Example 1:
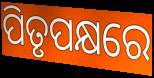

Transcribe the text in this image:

ପିତୃପକ୍ଷରେ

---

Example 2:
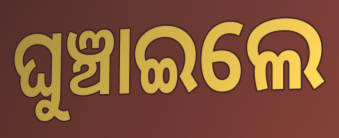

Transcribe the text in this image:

ଘୁଞ୍ଚାଇଲେ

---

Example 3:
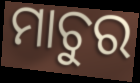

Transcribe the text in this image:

ମାଚୁର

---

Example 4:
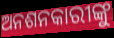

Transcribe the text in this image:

ଅନଶନକାରୀଙ୍କୁ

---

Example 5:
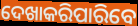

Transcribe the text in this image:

ଦେଖାକରିପାରିବେ